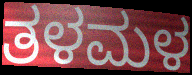
ತಳಮಳ